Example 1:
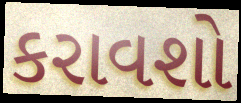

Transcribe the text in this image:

કરાવશો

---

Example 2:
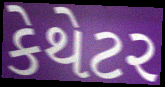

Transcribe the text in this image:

કેથેટર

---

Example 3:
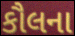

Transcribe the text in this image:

કૌલના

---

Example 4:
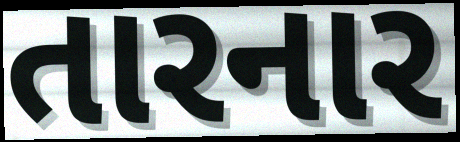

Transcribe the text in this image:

તારનાર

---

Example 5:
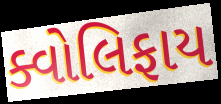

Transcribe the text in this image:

ક્વોલિફાય